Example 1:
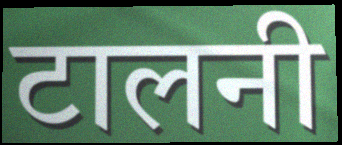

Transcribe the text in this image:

टालनी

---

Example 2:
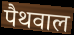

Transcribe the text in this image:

पैथवाल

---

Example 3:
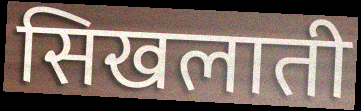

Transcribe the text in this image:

सिखलाती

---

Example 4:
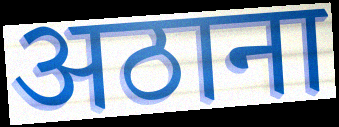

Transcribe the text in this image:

अठाना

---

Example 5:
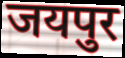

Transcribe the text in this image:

जयपुर